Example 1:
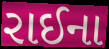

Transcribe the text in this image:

રાઈના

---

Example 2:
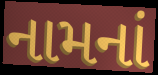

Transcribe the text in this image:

નામનાં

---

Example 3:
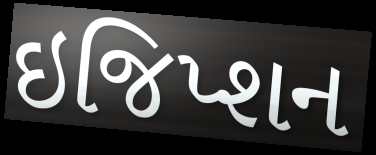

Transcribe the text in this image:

ઇજિપ્શન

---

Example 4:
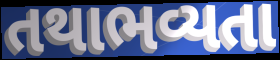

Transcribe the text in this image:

તથાભવ્યતા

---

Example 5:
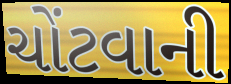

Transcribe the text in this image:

ચોંટવાની